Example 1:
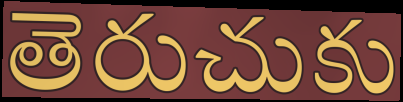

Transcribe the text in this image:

తెరుచుకు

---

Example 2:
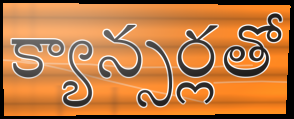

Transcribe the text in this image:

క్యాన్సర్లతో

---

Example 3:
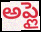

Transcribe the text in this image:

అప్లై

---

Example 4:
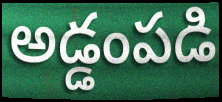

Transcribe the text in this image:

అడ్డంపడి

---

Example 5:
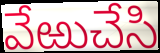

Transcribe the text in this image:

వేఱుచేసి